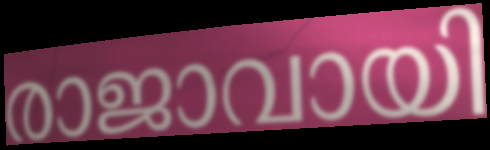
രാജാവായി